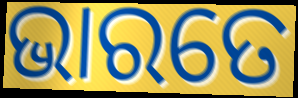
ଭାରତେ